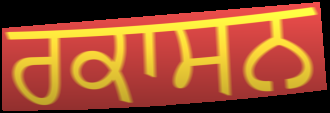
ਰਕਾਸਨ